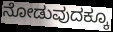
ನೋಡುವುದಕ್ಕೂ